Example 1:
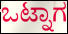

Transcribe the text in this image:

ಒಟ್ನಾಗ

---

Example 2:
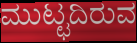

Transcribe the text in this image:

ಮುಟ್ಟದಿರುವ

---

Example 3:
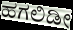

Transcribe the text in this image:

ಹಗಲಿಡೀ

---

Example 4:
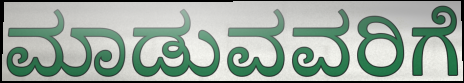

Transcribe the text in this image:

ಮಾಡುವವರಿಗೆ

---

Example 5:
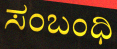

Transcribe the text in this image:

ಸಂಬಂಧಿ